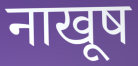
नाखूष